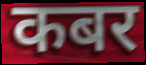
कबर